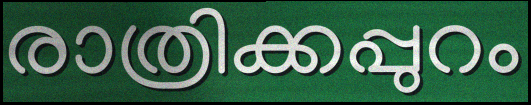
രാത്രിക്കപ്പുറം